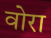
वोरा